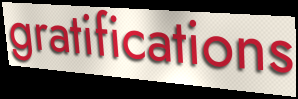
gratifications